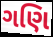
ગણિ